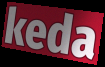
keda